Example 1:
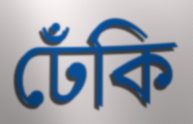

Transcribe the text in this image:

ঢেঁকি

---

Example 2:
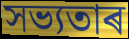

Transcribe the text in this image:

সভ্যতাৰ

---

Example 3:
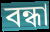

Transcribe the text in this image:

বন্ধা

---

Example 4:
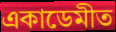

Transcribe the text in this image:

একাডেমীত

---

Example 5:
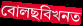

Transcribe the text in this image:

বোলছবিখনত